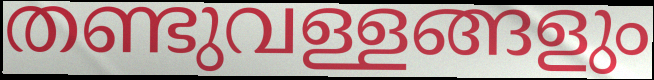
തണ്ടുവള്ളങ്ങളും